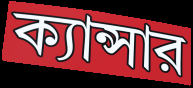
ক্যান্সার